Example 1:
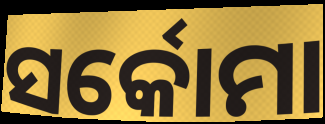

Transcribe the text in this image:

ସର୍କୋମା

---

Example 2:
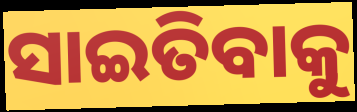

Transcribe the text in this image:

ସାଇତିବାକୁ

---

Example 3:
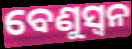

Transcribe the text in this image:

ବେଣୁସ୍ଵନ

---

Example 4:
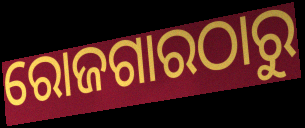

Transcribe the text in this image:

ରୋଜଗାରଠାରୁ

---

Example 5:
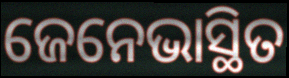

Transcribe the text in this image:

ଜେନେଭାସ୍ଥିତ